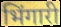
भिंगारी